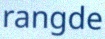
rangde